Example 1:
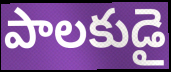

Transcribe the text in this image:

పాలకుడై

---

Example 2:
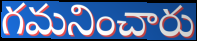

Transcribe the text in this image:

గమనించారు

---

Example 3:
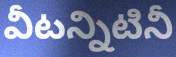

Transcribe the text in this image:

వీటన్నిటినీ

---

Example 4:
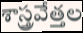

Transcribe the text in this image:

శాస్త్రవేత్తల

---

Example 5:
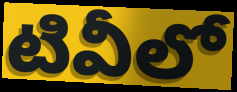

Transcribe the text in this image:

టివీలో